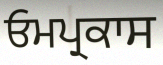
ਓਮਪ੍ਰਕਾਸ